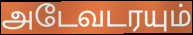
அடேவடரயும்